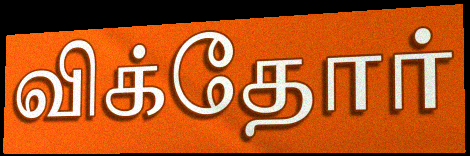
விக்தோர்